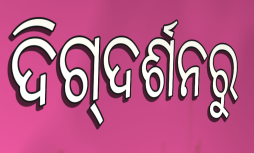
ଦିଗ୍‌ଦର୍ଶନରୁ